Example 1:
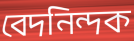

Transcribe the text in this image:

বেদনিন্দক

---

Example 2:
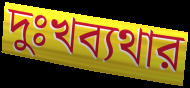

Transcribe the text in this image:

দুঃখব্যথার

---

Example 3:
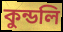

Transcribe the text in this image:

কুন্ডলি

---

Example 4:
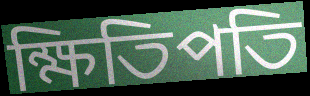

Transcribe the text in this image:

ক্ষিতিপতি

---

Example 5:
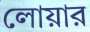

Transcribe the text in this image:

লোয়ার